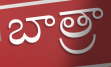
బాత్రా